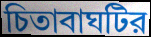
চিতাবাঘটির